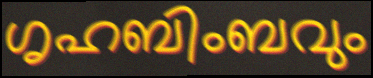
ഗൃഹബിംബവും